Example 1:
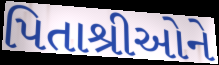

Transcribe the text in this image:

પિતાશ્રીઓને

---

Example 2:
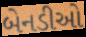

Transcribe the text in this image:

બેનડીઓ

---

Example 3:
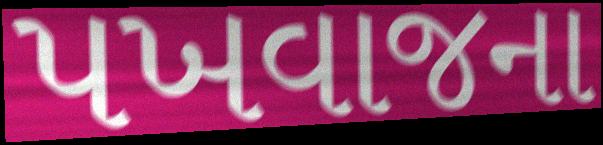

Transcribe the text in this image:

પખવાજના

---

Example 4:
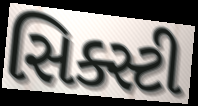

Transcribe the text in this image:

સિક્સ્ટી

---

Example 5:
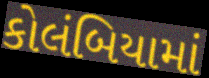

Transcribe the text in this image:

કોલંબિયામાં